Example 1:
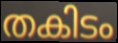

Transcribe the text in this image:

തകിടം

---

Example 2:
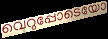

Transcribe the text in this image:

വെറുപ്പോടെയോ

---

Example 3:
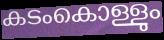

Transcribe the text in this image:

കടംകൊള്ളും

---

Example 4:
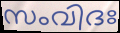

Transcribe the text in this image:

സംവിദഃ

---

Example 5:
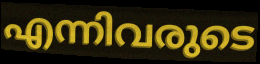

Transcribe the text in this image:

എന്നിവരുടെ